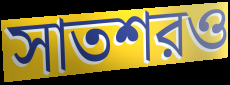
সাতশরও